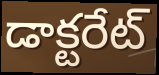
డాక్టరేట్